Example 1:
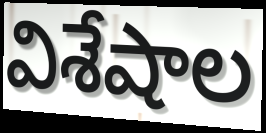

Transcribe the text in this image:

విశేషాల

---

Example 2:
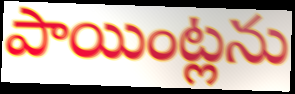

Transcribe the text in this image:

పాయింట్లను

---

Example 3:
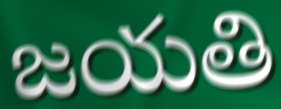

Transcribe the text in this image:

జయతి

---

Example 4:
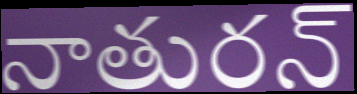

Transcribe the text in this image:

నాతురన్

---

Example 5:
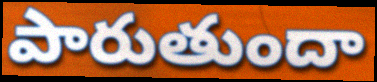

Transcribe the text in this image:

పారుతుందా